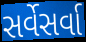
સર્વેસર્વા